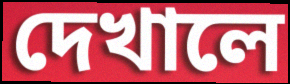
দেখালে